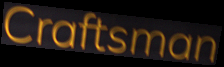
Craftsman